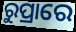
ରୁପ୍ରାରେ